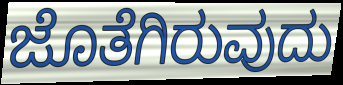
ಜೊತೆಗಿರುವುದು